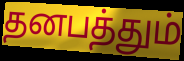
தனபத்தும்